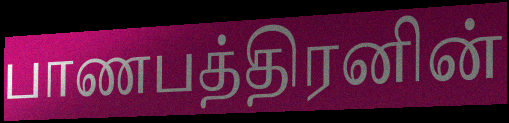
பாணபத்திரனின்